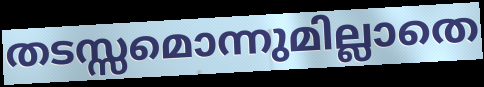
തടസ്സമൊന്നുമില്ലാതെ